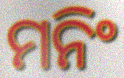
ମନିଂ